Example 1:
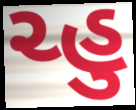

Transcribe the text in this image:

ચ્હુ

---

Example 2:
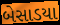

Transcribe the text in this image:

બેસાડયા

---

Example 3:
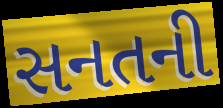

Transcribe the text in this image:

સનતની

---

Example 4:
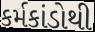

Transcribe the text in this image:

કર્મકાંડોથી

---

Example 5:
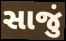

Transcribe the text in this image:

સાજું